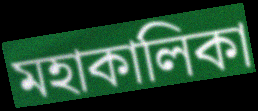
মহাকালিকা